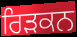
ਰਿੜਕਨ